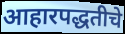
आहारपद्धतीचे